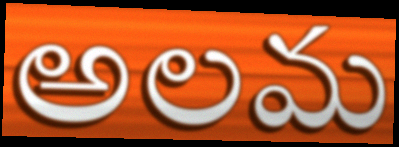
అలమ